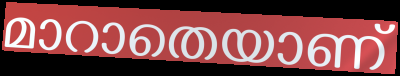
മാറാതെയാണ്